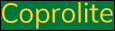
Coprolite